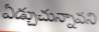
ఏడ్చుచున్నావని